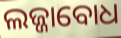
ଲଜ୍ଜାବୋଧ